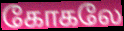
கோகலே